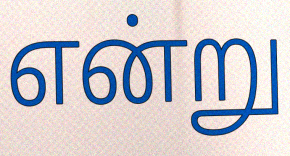
என்று